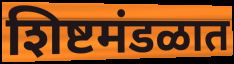
शिष्टमंडळात